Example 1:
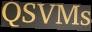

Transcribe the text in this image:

QSVMs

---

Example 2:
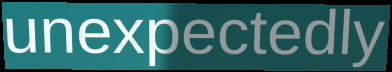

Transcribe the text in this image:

unexpectedly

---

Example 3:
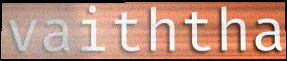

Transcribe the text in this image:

vaiththa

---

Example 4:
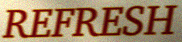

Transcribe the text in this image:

REFRESH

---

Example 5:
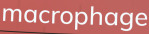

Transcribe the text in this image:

macrophage